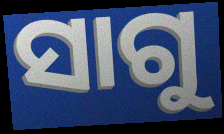
ସାଗୁ